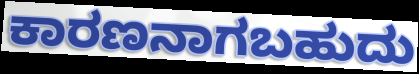
ಕಾರಣನಾಗಬಹುದು